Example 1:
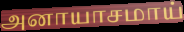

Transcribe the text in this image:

அனாயாசமாய்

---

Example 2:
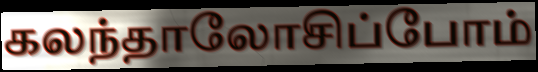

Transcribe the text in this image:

கலந்தாலோசிப்போம்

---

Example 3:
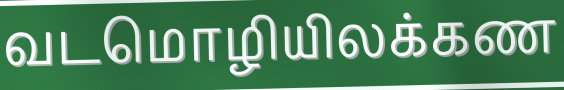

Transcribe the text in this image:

வடமொழியிலக்கண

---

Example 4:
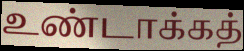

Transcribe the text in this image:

உண்டாக்கத்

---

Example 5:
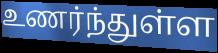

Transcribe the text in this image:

உணர்ந்துள்ள